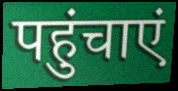
पहुंचाएं